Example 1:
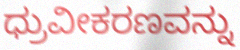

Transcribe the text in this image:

ಧ್ರುವೀಕರಣವನ್ನು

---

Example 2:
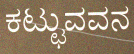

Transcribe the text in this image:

ಕಟ್ಟುವವನ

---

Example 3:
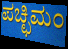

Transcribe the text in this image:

ಪಚ್ಛಿಮಂ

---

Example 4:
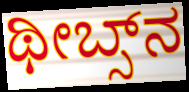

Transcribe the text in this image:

ಥೀಬ್ಸ್‌ನ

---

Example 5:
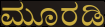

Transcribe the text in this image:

ಮೂರಡಿ